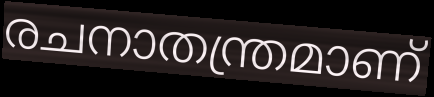
രചനാതന്ത്രമാണ്